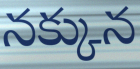
నక్కున